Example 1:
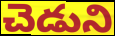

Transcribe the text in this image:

చెడుని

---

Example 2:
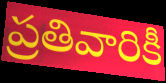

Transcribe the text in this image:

ప్రతివారికీ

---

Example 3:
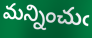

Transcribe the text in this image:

మన్నించుఁ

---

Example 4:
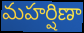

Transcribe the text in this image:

మహర్షిణా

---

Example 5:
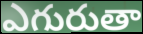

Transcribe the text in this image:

ఎగురుతా